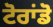
ਟੋਰਾਂਡੋ